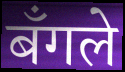
बँगले